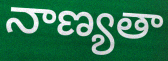
నాణ్యతా